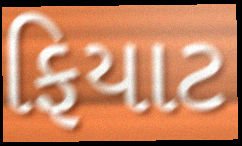
ફિયાટ